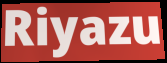
Riyazu